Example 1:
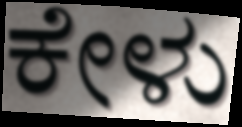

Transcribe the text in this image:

ಕೇಳು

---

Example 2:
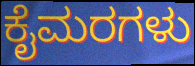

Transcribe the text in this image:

ಕೈಮರಗಳು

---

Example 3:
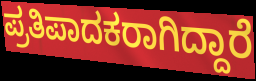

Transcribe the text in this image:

ಪ್ರತಿಪಾದಕರಾಗಿದ್ದಾರೆ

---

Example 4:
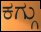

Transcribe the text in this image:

ಕಗ್ಗು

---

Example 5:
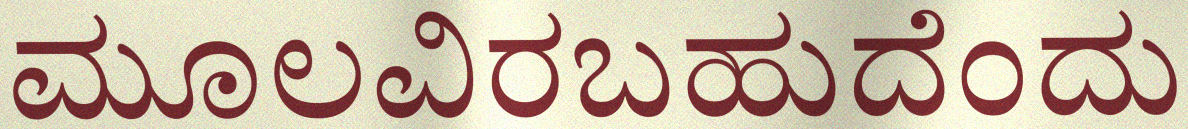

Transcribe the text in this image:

ಮೂಲವಿರಬಹುದೆಂದು